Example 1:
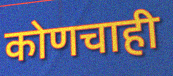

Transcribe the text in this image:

कोणचाही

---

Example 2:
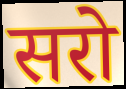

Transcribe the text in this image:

सरो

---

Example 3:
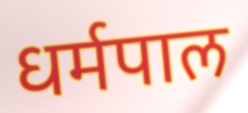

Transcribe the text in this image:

धर्मपाल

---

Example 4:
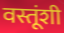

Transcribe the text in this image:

वस्तूंशी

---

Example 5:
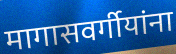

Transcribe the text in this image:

मागासवर्गीयांना